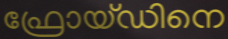
ഫ്രോയ്ഡിനെ